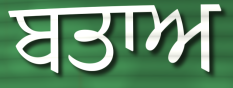
ਬਤਾਅ